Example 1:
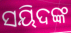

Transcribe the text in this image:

ସୟିଦଙ୍କ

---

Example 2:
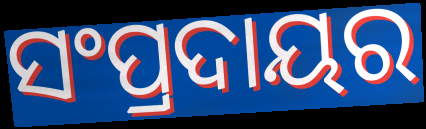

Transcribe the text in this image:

ସଂପ୍ରଦାୟର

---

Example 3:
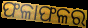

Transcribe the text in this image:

ଫଳାଫଳର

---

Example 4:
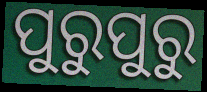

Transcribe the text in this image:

ପୁରୁପୁରୁ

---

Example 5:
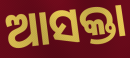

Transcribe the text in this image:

ଆସକ୍ତା